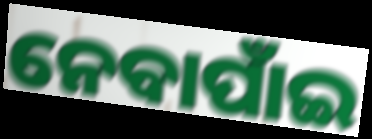
ନେବାପାଁଇ